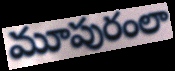
మూపురంలా